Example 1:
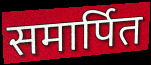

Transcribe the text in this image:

समार्पित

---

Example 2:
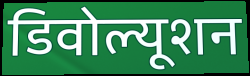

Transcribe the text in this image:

डिवोल्यूशन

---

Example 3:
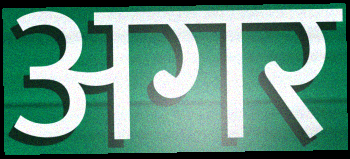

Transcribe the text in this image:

अगर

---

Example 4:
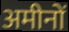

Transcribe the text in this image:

अमीनों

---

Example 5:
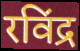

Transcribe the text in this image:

रविंद्र